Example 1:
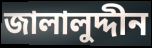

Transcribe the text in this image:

জালালুদ্দীন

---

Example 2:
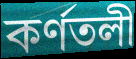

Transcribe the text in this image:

কর্ণতলী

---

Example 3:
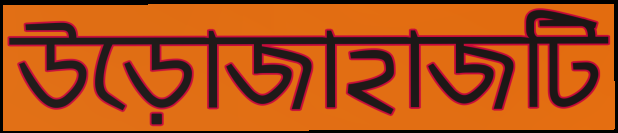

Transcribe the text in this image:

উড়োজাহাজটি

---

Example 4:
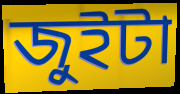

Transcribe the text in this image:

জুইটা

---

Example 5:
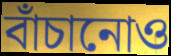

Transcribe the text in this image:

বাঁচানোও